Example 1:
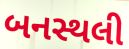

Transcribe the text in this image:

બનસ્થલી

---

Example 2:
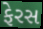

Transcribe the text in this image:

ફેરસ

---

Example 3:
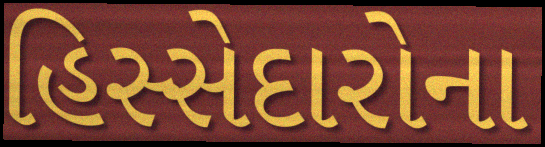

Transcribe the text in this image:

હિસ્સેદારોના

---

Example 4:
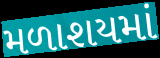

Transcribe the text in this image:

મળાશયમાં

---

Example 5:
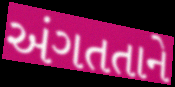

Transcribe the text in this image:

અંગતતાને